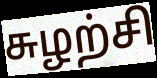
சுழற்சி